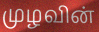
முழவின்